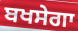
ਬਖਸੇਗਾ